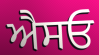
ਐਸਓ